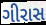
ગીરાસ